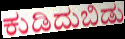
ಕುಡಿದುಬಿಡು